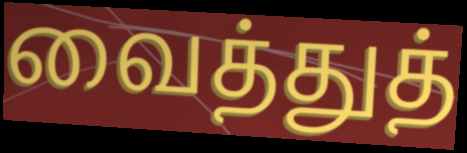
வைத்துத்